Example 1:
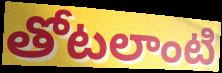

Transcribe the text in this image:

తోటలాంటి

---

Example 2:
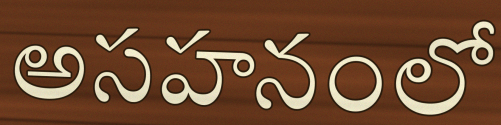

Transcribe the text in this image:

అసహనంలో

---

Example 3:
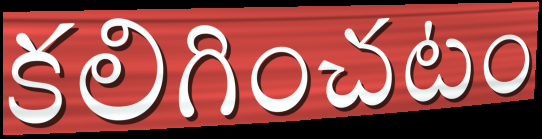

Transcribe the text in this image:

కలిగించటం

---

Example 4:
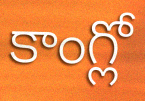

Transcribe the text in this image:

కాంగ్లో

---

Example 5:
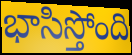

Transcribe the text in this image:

భాసిస్తోంది